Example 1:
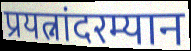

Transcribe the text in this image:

प्रयत्नांदरम्यान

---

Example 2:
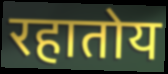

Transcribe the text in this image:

रहातोय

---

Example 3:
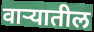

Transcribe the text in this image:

वाऱ्यातील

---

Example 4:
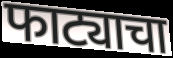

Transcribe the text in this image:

फाट्याचा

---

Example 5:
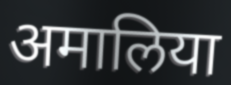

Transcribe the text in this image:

अमालिया